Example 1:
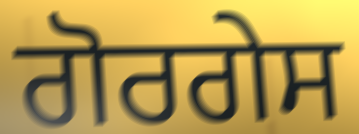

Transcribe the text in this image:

ਗੋਰਗੇਸ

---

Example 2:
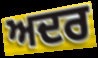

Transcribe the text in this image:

ਅਦਰ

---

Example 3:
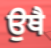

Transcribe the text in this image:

ਉਥੈ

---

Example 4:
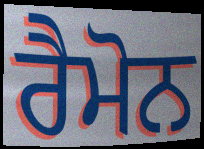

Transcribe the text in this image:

ਰੈਮੋਨ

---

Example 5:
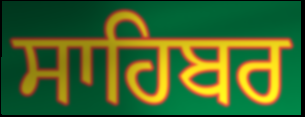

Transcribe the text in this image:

ਸਾਹਿਬਰ